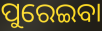
ପୁରେଇବା